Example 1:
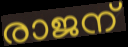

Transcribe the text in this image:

രാജന്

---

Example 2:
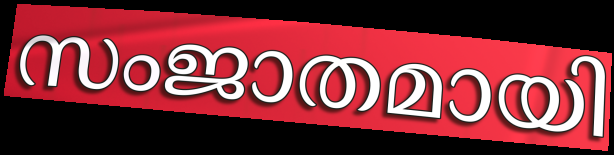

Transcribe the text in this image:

സംജാതമായി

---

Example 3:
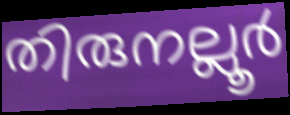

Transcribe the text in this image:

തിരുനല്ലൂർ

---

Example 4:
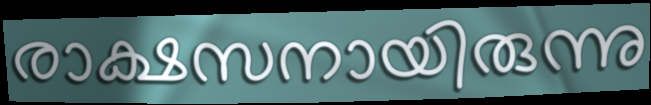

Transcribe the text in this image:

രാക്ഷസനായിരുന്നു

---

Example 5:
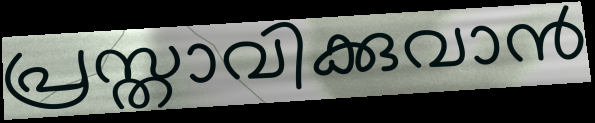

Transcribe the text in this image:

പ്രസ്താവിക്കുവാൻ